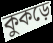
কুকড়ে